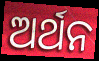
ଅର୍ଥନ